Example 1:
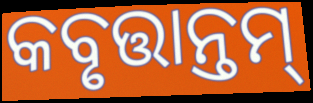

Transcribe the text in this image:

କବୃତ୍ତାନ୍ତମ୍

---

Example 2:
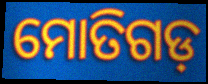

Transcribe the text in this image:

ମୋତିଗଡ଼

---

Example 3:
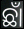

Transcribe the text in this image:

ଛାଁ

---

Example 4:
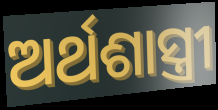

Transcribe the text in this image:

ଅର୍ଥଶାସ୍ତ୍ରୀ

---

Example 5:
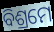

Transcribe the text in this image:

ବିଶ୍ରମେ